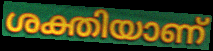
ശക്തിയാണ്